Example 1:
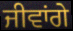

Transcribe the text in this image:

ਜੀਵਾਂਗੇ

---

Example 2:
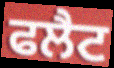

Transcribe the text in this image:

ਫਲੈਟ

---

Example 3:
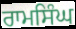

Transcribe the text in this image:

ਰਾਮਸਿੰਘ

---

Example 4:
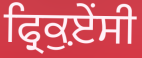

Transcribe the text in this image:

ਫ੍ਰਿਕ਼ੁਏਂਸੀ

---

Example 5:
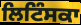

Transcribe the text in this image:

ਲਿਟਿੰਸਕਾ